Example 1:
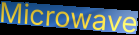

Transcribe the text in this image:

Microwave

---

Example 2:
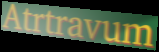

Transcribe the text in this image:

Atrtravum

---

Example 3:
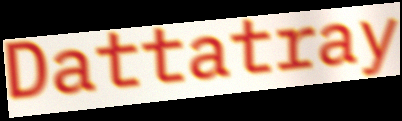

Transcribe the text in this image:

Dattatray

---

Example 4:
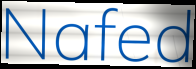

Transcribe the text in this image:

Nafed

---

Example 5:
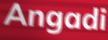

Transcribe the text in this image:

Angadi